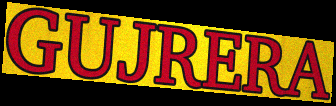
GUJRERA